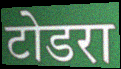
टोडरा